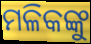
ମଳିକଙ୍କୁ